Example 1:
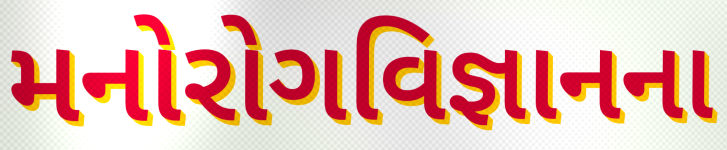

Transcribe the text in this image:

મનોરોગવિજ્ઞાનના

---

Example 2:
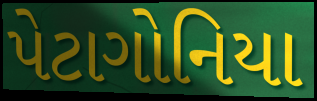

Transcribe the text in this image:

પેટાગોનિયા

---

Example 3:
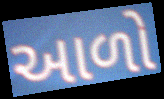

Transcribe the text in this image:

આળો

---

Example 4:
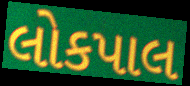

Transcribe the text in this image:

લોકપાલ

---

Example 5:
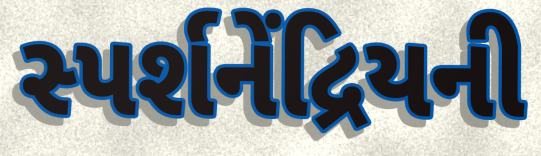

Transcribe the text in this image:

સ્પર્શનેંદ્રિયની